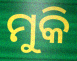
ମୁକି